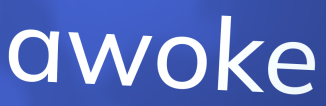
awoke